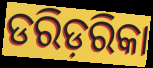
ଡରିଡ଼ରିକା